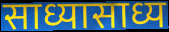
साध्यासाध्य